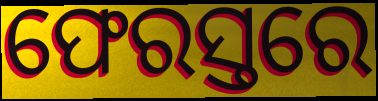
ଫେରସ୍ତରେ